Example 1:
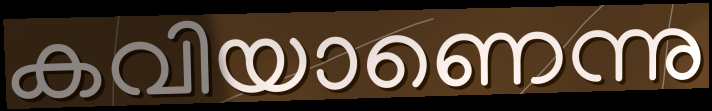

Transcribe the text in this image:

കവിയാണെന്നു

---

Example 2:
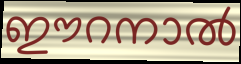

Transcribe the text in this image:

ഈറനാൽ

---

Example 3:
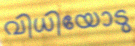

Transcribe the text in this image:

വിധിയോടു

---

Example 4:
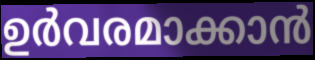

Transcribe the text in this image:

ഉർവരമാക്കാൻ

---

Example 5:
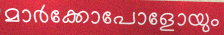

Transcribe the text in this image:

മാർക്കോപോളോയും